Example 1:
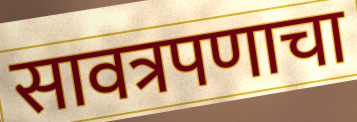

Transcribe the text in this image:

सावत्रपणाचा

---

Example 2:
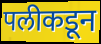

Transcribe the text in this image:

पलीकडून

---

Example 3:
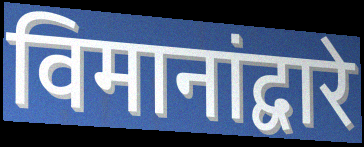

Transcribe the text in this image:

विमानांद्वारे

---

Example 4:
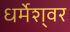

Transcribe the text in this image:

धर्मेश्वर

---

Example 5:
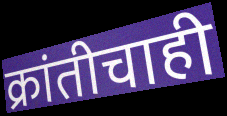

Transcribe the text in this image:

क्रांतीचाही